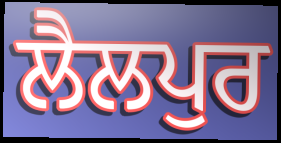
ਲੈਲਪੁਰ